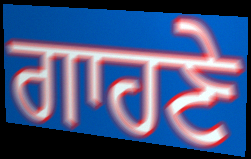
ਗਾਹਣੇ